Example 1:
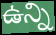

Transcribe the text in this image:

ఉన్ని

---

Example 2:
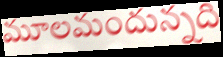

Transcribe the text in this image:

మూలమందున్నది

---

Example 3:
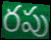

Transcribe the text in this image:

రపు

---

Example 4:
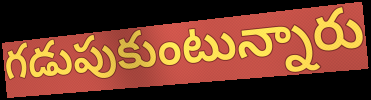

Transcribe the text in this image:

గడుపుకుంటున్నారు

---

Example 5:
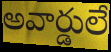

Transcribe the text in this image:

అవార్డులే